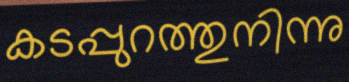
കടപ്പുറത്തുനിന്നു